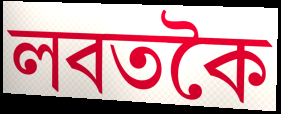
লবতকৈ